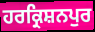
ਹਰਕ੍ਰਿਸ਼ਨਪੁਰ